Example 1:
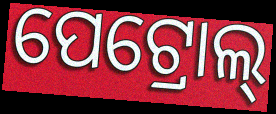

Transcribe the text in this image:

ପେଟ୍ରୋଲ୍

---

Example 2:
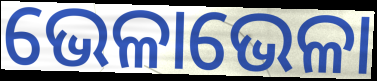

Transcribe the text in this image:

ଭେଳାଭେଳା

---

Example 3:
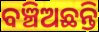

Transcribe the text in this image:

ବଞ୍ଚିଅଛନ୍ତି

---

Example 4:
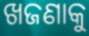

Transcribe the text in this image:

ଖଜଣାକୁ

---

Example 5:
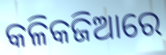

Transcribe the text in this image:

କଳିକଜିଆରେ